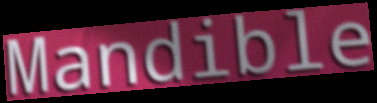
Mandible